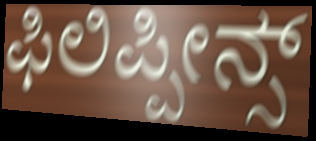
ಫಿಲಿಪ್ಪೀನ್ಸ್